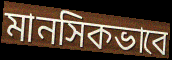
মানসিকভাবে